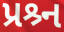
પ્રશ્ર્ન